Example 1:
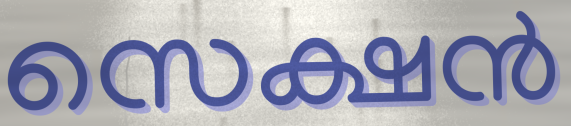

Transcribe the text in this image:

സെക്ഷൻ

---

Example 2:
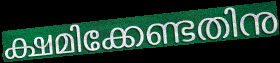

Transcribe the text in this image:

ക്ഷമിക്കേണ്ടതിനു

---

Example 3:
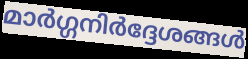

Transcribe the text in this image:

മാർഗ്ഗനിർദ്ദേശങ്ങൾ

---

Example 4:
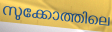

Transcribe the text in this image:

സുക്കോത്തിലെ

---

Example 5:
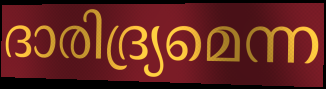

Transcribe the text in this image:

ദാരിദ്ര്യമെന്ന